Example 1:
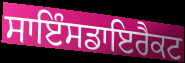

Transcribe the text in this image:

ਸਾਇੰਸਡਾਇਰੈਕਟ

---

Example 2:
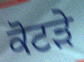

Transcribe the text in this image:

ਕੋਟੜੇ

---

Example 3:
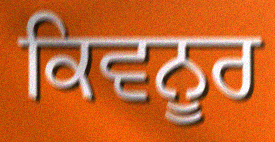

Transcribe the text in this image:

ਕਿਵਨੂਰ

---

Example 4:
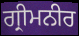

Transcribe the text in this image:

ਗ੍ਰੀਮਨੀਰ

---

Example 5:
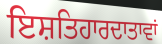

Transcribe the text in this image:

ਇਸ਼ਤਿਹਾਰਦਾਤਾਵਾਂ